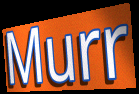
Murr